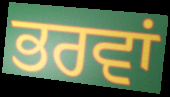
ਭਰਵਾਂ